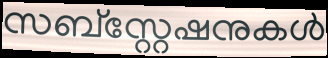
സബ്സ്റ്റേഷനുകൾ